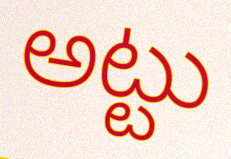
అట్టు